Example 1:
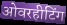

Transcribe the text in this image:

ओवरहीटिंग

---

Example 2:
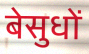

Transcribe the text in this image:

बेसुधों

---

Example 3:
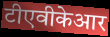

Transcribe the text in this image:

टीएवीकेआर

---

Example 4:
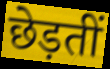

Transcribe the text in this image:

छेड़तीं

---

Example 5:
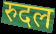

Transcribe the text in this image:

रुदल